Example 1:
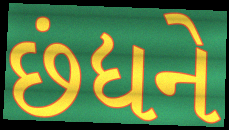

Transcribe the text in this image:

છંદ્યને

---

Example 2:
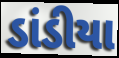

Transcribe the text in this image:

ડાંડીયા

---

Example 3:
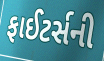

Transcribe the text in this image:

ફાઈટર્સની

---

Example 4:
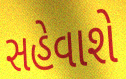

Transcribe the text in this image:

સહેવાશે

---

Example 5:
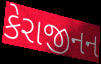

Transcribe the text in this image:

કેરાજીનન